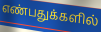
எண்பதுக்களில்